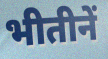
भीतीनें